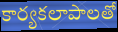
కార్యకలాపాలతో